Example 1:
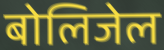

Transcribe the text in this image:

बोलिजेल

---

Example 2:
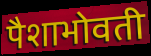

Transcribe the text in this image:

पैशाभोवती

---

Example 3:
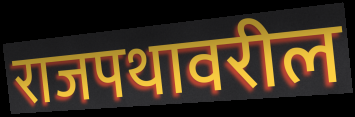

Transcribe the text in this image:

राजपथावरील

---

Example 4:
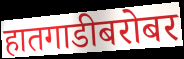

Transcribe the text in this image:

हातगाडीबरोबर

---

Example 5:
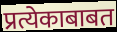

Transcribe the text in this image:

प्रत्येकाबाबत